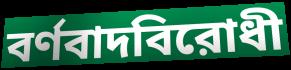
বর্ণবাদবিরোধী